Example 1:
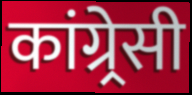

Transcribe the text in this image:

कांग्र्रेसी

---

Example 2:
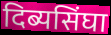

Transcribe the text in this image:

दिब्यसिंघा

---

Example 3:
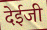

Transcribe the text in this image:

देईजी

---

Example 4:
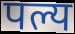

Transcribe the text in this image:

पल्य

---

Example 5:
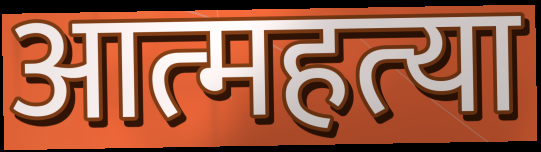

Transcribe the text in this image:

आत्‍महत्‍या